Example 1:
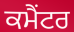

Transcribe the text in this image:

ਕਮੈਂਟਰ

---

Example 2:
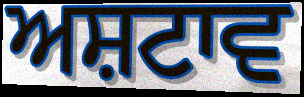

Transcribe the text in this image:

ਅਸ਼ਟਾਵ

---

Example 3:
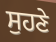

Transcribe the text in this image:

ਸੁਹਣੇ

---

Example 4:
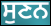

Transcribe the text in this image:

ਸੁਣਨ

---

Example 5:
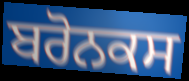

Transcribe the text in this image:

ਬਰੋਨਕਸ